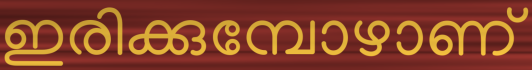
ഇരിക്കുമ്പോഴാണ്